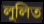
লুলিত